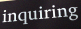
inquiring